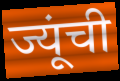
ज्यूंची